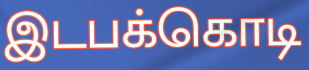
இடபக்கொடி